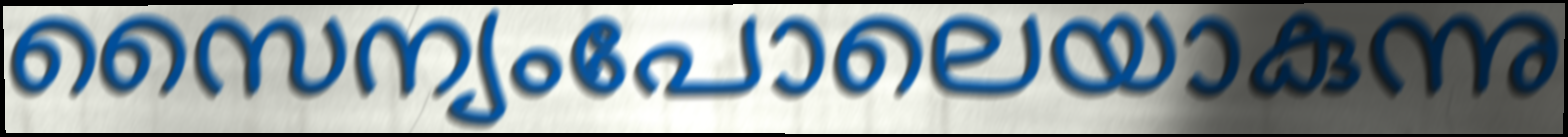
സൈന്യംപോലെയാകുന്നു